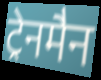
ट्रेनमैन